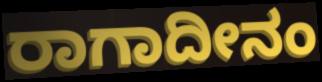
ರಾಗಾದೀನಂ